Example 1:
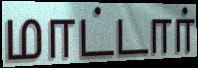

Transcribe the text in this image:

மாட்டார்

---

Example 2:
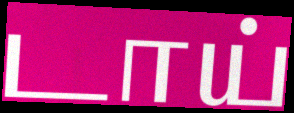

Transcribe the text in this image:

டாய்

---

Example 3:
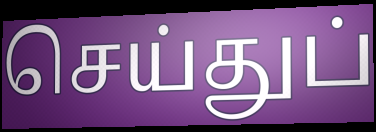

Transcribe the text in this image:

செய்துப்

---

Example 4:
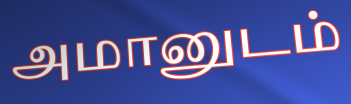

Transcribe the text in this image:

அமானுடம்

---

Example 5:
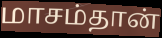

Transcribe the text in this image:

மாசம்தான்